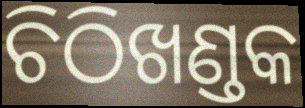
ଚିଠିଖଣ୍ଡକ